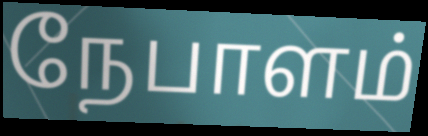
நேபாளம்